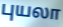
புயலா